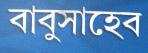
বাবুসাহেব